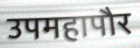
उपमहापौर